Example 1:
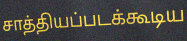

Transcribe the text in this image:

சாத்தியப்படக்கூடிய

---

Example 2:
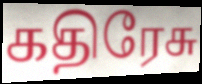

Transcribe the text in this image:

கதிரேசு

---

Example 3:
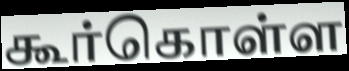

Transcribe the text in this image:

கூர்கொள்ள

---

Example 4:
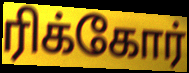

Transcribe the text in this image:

ரிக்கோர்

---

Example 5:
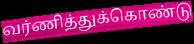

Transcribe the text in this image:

வர்ணித்துக்கொண்டு